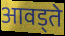
आवड्ते